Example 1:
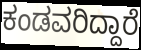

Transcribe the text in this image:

ಕಂಡವರಿದ್ದಾರೆ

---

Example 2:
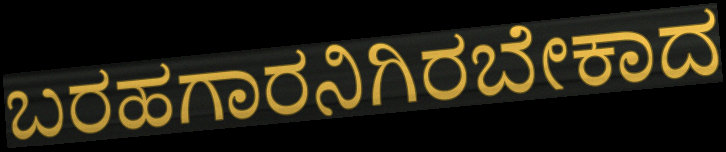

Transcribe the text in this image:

ಬರಹಗಾರನಿಗಿರಬೇಕಾದ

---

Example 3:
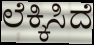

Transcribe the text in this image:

ಲೆಕ್ಕಿಸಿದೆ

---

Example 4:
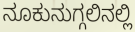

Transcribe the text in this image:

ನೂಕುನುಗ್ಗಲಿನಲ್ಲಿ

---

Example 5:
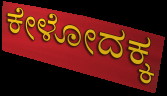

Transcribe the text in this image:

ಕೇಳೋದಕ್ಕ